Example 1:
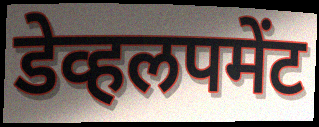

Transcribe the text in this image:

डेव्हलपमेंट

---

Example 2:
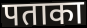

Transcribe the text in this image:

पताका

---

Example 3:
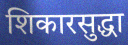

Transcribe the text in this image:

शिकारसुद्धा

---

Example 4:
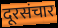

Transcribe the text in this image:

दूरसंचार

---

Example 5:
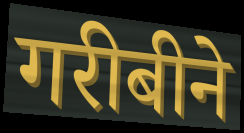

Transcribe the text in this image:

गरीबीने